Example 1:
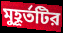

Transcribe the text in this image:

মুহূর্তটির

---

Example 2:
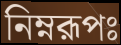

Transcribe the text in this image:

নিম্নরূপঃ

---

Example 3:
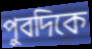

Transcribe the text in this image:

পুবদিকে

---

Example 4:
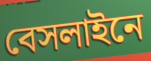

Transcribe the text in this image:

বেসলাইনে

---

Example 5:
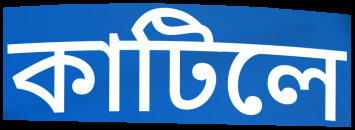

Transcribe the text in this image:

কাটিলে